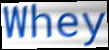
Whey